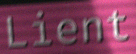
Lient